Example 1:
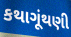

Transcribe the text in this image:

કથાગૂંથણી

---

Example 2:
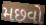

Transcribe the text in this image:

મછવો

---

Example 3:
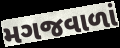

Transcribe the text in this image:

મગજવાળાં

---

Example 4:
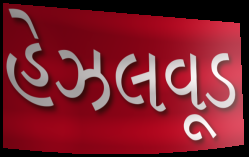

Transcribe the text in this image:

હેઝલવૂડ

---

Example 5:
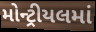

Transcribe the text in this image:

મોન્ટ્રીયલમાં